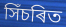
সিঁচৰিত